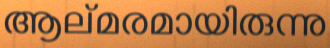
ആല്മരമായിരുന്നു